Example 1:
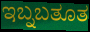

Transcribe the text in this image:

ಇಬ್ನಬತೂತ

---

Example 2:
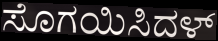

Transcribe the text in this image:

ಸೊಗಯಿಸಿದಳ್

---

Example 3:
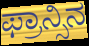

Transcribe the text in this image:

ಫ್ರಾನ್ಸಿನ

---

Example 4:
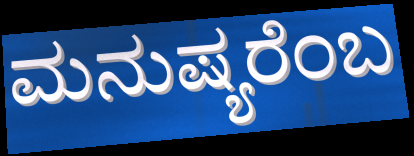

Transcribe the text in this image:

ಮನುಷ್ಯರೆಂಬ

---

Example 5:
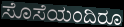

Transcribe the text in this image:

ಸೊಸೆಯಂದಿರೂ